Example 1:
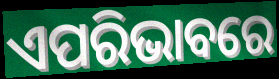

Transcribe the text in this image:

ଏପରିଭାବରେ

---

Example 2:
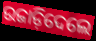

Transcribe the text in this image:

ଉଜାଡ଼ିଦେଲେ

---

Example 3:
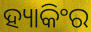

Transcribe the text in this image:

ହ୍ୟାକିଂର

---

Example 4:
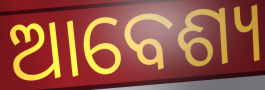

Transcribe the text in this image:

ଆବେଶ୍ୟ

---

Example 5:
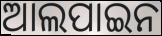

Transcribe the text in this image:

ଆଲପାଇନ